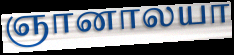
ஞானாலயா